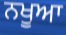
ਨਖੂਆ